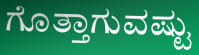
ಗೊತ್ತಾಗುವಷ್ಟು